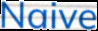
Naive